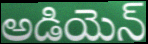
అడియెన్